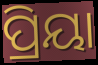
ପ୍ରିୟା